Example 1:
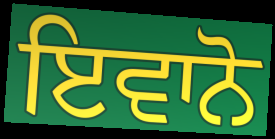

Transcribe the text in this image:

ਇਵਾਨੋ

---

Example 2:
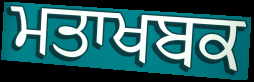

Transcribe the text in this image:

ਮਤਾਖਬਕ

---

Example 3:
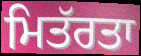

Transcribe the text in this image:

ਮਿਤੱਰਤਾ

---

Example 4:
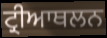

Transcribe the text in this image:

ਟ੍ਰੀਆਥਲਨ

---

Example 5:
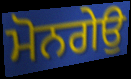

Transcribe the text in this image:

ਮੋਨਗੇਉ